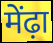
मेंढ़ा